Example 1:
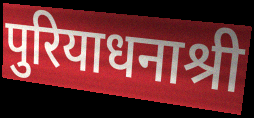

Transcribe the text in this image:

पुरियाधनाश्री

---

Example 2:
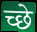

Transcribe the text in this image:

च्छे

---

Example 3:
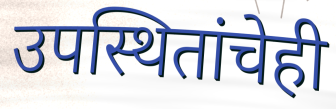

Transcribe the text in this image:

उपस्थितांचेही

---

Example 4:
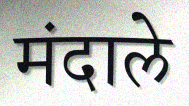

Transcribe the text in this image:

मंदाले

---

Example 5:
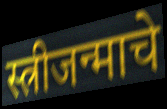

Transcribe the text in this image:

स्त्रीजन्माचे